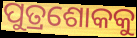
ପୁତ୍ରଶୋକକୁ